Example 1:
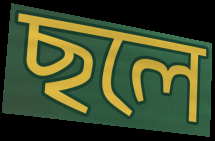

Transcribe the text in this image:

ছলে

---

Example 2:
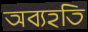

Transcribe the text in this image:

অব্যহতি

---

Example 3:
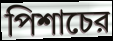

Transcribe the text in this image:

পিশাচের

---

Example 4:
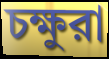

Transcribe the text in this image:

চক্ষুরা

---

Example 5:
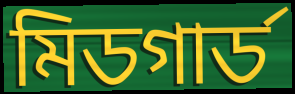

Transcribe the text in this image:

মিডগার্ড